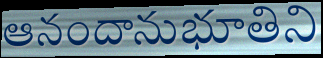
ఆనందానుభూతిని